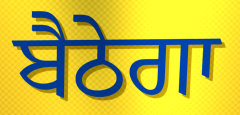
ਬੈਠੇਗਾ